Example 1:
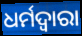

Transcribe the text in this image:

ଧର୍ମଦ୍ଵାରା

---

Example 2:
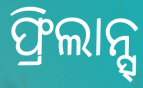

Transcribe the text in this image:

ଫ୍ରିଲାନ୍ସ୍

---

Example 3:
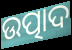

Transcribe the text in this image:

ଉତ୍ପାଦ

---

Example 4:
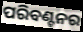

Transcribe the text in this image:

ପରିବଣ୍ଟନର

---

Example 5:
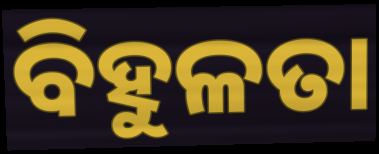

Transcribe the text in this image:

ବିହୁଳତା